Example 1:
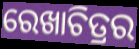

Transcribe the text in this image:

ରେଖାଚିତ୍ରର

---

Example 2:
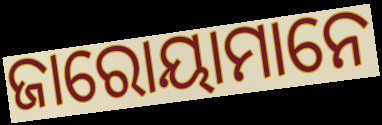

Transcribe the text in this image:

ଜାରୋୟାମାନେ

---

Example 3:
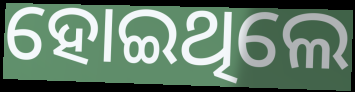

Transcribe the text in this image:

ହୋଇଥିଲେ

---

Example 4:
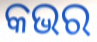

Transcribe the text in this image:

କଭର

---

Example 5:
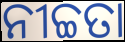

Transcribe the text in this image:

ନୀଚ୍ଚତା